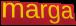
marga